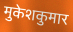
मुकेशकुमार